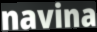
navina